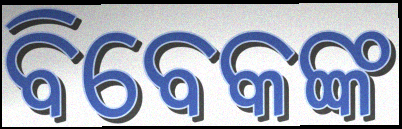
ବିବେକଙ୍କ